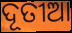
ଦୂତୀଆ